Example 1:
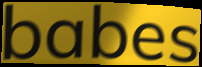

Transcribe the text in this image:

babes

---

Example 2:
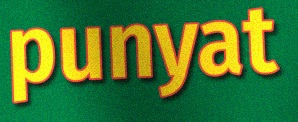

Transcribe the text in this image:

punyat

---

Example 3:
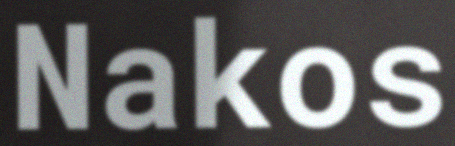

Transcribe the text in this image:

Nakos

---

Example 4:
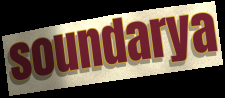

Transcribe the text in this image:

soundarya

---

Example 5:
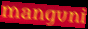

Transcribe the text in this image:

manguni